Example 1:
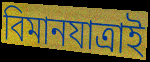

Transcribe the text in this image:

বিমানযাত্রাই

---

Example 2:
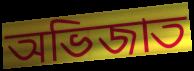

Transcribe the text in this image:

অভিজাত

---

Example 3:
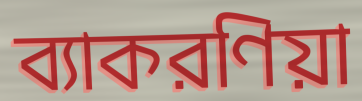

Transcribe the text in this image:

ব্যাকরণিয়া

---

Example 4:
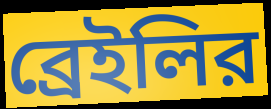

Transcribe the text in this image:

ব্রেইলির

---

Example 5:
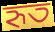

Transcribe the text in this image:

হৃত